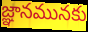
జ్ఞానమునకు